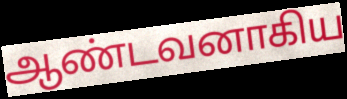
ஆண்டவனாகிய